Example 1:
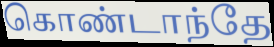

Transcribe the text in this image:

கொண்டாந்தே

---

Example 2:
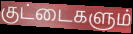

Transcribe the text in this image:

குட்டைகளும்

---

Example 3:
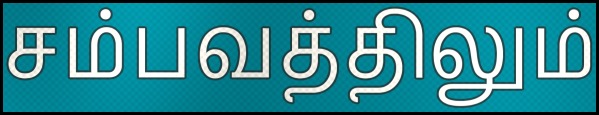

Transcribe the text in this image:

சம்பவத்திலும்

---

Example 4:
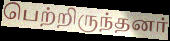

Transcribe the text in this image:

பெற்றிருந்தனர்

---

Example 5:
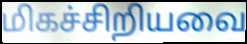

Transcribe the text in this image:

மிகச்சிறியவை